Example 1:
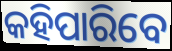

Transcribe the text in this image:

କହିପାରିବେ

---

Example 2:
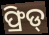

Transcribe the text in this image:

ଫ୍ରିଡ୍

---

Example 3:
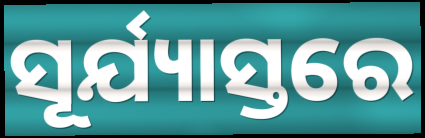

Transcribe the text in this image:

ସୂର୍ଯ୍ୟାସ୍ତରେ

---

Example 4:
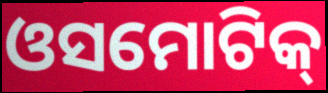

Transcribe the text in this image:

ଓସମୋଟିକ୍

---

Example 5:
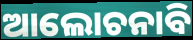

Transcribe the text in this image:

ଆଲୋଚନାବି